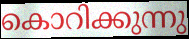
കൊറിക്കുന്നു